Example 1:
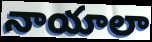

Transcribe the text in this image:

నాయాలా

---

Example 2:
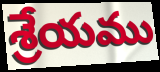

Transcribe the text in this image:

శ్రేయము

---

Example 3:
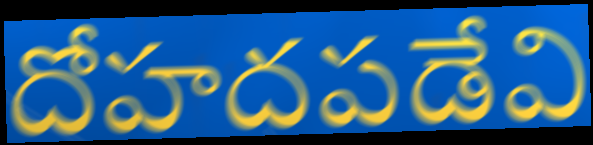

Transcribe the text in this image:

దోహదపడేవి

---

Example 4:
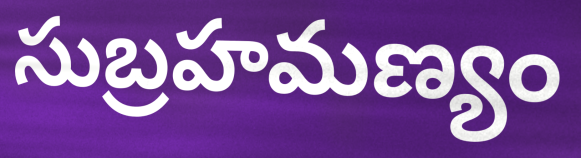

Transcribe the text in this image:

సుబ్రహమణ్యం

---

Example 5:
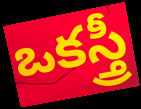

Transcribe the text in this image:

ఒకస్త్రీ